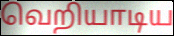
வெறியாடிய